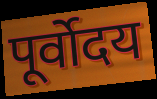
पूर्वोदय